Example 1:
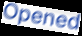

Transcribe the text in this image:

Opened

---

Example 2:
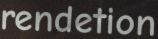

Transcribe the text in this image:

rendetion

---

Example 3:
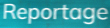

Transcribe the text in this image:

Reportage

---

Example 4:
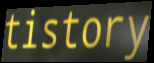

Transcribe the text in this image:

tistory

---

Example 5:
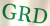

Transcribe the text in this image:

GRD